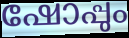
ഷോപ്പും